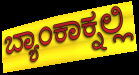
ಬ್ಯಾಂಕಾಕ್ನಲ್ಲಿ